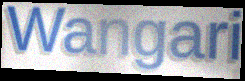
Wangari